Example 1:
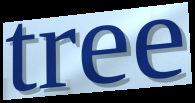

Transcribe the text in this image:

tree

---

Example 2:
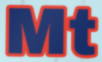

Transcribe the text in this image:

Mt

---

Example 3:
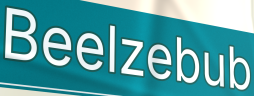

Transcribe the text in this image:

Beelzebub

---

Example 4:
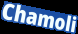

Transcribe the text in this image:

Chamoli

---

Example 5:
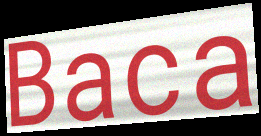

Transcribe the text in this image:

Baca